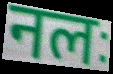
नलः